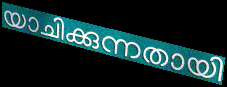
യാചിക്കുന്നതായി